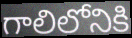
గాలిలోనికి